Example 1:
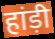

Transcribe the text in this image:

हांड़ी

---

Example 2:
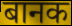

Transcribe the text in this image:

बानक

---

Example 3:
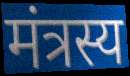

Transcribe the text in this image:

मंत्रस्य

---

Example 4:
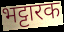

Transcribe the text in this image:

भट्टारक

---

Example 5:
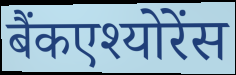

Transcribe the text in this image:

बैंकएश्योरेंस